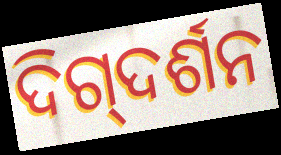
ଦିଗ୍‌ଦର୍ଶନ